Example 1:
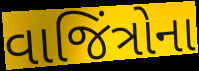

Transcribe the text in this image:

વાજિંત્રોના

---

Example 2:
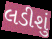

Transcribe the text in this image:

લડીશું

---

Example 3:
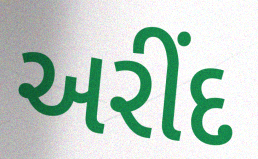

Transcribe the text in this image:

અરીંદ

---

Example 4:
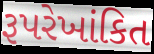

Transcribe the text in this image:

રૂપરેખાંકિત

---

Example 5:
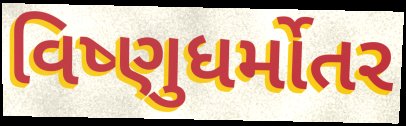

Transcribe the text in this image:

વિષ્ણુધર્મોતર